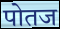
पोतज